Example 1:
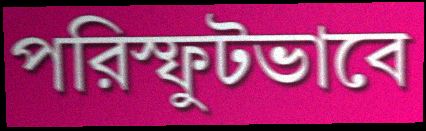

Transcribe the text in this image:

পরিস্ফুটভাবে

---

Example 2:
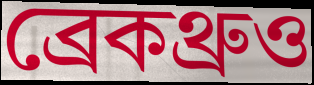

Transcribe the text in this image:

ব্রেকথ্রুও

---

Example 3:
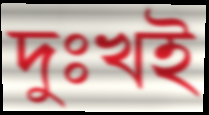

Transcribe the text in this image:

দুঃখই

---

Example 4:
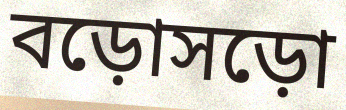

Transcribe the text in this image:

বড়োসড়ো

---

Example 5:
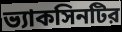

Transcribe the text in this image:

ভ্যাকসিনটির